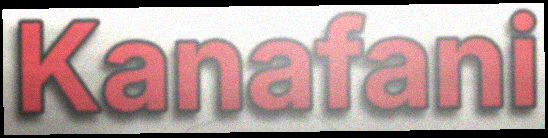
Kanafani